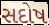
સદોષ